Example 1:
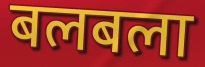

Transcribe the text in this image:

बलबला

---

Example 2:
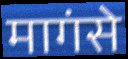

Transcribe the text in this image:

मागंसे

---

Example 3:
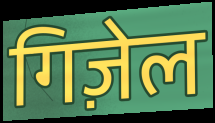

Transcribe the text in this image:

गिज़ेल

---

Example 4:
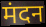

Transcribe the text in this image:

मंदन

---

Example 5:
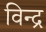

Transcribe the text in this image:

विन्द्र